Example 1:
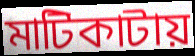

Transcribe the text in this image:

মাটিকাটায়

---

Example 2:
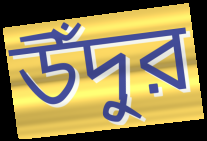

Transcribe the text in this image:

উঁদুর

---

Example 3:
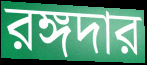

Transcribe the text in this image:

রঙ্গদার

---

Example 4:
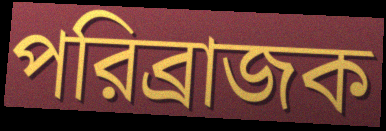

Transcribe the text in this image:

পরিব্রাজক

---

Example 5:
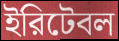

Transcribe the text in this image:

ইরিটেবল